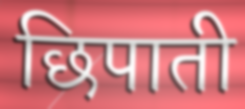
छिपाती